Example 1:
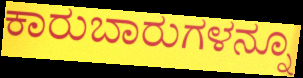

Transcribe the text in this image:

ಕಾರುಬಾರುಗಳನ್ನೂ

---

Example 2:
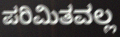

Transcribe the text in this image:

ಪರಿಮಿತವಲ್ಲ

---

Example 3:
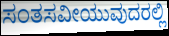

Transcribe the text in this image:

ಸಂತಸವೀಯುವುದರಲ್ಲಿ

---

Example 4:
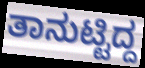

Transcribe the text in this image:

ತಾನುಟ್ಟಿದ್ದ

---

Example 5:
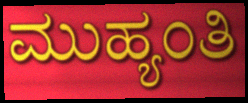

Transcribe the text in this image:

ಮುಹ್ಯಂತಿ